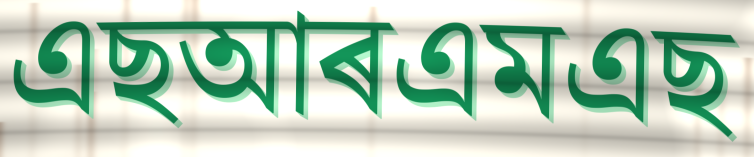
এছআৰএমএছ